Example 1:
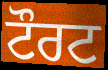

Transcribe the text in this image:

ਟੌਰਟ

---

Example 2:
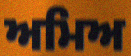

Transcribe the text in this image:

ਅਮਿਅ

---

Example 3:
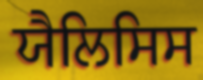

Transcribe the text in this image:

ਯੈਲਿਸਿਸ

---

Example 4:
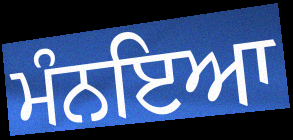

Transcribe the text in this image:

ਮੰਨਇਆ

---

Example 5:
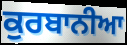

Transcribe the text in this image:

ਕੁਰਬਾਨੀਆ